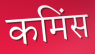
कमिंस